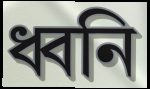
ধ্বনি